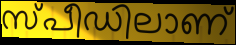
സ്പീഡിലാണ്